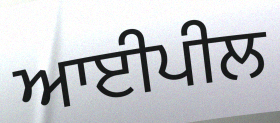
ਆਈਪੀਲ